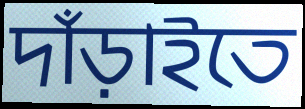
দাঁড়াইতে